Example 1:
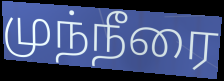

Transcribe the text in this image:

முந்நீரை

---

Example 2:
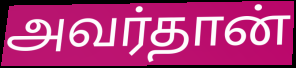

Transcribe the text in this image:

அவர்தான்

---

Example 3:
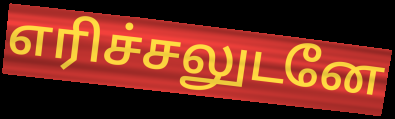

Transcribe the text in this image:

எரிச்சலுடனே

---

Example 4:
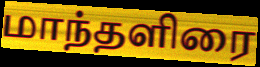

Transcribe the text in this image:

மாந்தளிரை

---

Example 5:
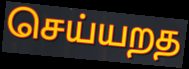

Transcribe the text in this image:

செய்யறத